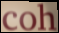
coh